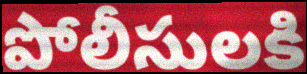
పోలీసులకి